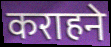
कराहने